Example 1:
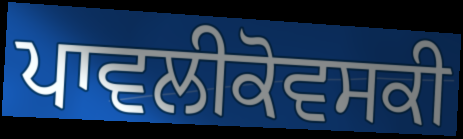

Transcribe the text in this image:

ਪਾਵਲੀਕੋਵਸਕੀ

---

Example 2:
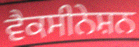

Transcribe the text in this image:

ਵੈਕਸੀਨੇਸ਼ਨ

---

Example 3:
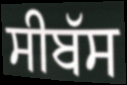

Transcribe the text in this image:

ਸੀਬੱਸ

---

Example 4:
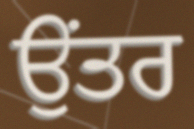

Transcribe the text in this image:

ਉਂਤਰ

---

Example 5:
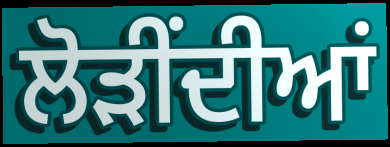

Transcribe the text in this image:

ਲੋੜੀਂਦੀਆਂ